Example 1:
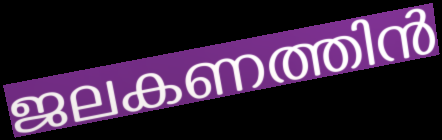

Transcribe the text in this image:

ജലകണത്തിൻ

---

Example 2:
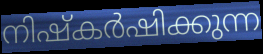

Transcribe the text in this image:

നിഷ്കർഷിക്കുന്ന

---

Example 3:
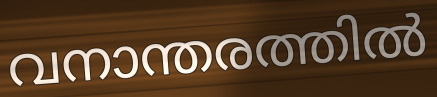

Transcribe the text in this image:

വനാന്തരത്തിൽ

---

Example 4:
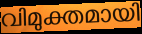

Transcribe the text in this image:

വിമുക്തമായി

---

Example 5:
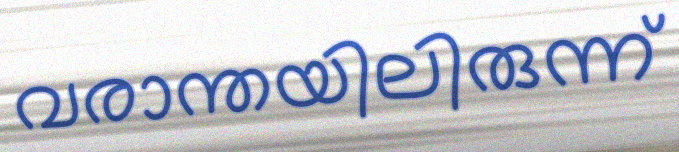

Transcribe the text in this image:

വരാന്തയിലിരുന്ന്